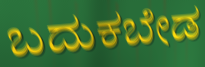
ಬದುಕಬೇಡ